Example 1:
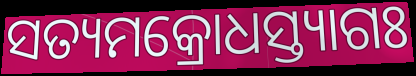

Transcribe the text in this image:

ସତ୍ୟମକ୍ରୋଧସ୍ତ୍ୟାଗଃ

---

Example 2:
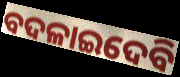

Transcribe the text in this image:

ବଦଳାଇଦେବି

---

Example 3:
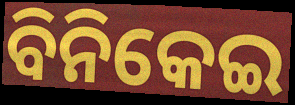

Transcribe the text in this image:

ବିନିକେଇ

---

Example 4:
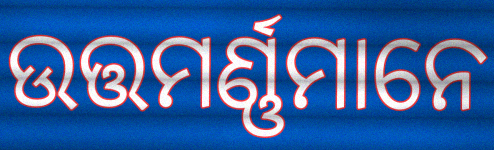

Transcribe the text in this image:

ଉତ୍ତମର୍ଣ୍ଣମାନେ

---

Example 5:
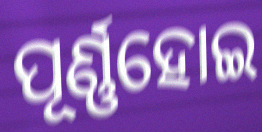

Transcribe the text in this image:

ପୂର୍ଣ୍ଣହୋଇ